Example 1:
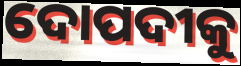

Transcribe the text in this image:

ଦୋପଦୀକୁ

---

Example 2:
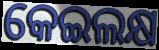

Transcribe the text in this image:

କେଇଲକ୍ଷ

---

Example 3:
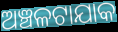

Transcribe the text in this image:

ଅଞ୍ଚଳଟାଯାକ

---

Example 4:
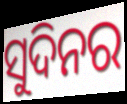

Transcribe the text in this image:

ସୁଦିନର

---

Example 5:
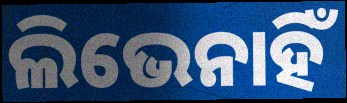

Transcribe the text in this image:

ଲିଭେନାହିଁ